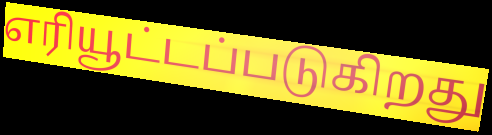
எரியூட்டப்படுகிறது